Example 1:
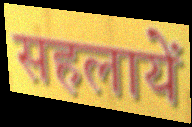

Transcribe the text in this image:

सहलायें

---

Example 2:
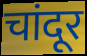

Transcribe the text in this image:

चांदूर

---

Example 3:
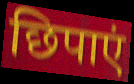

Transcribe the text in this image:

छिपाएं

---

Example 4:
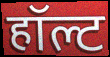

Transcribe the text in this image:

हॉल्‍ट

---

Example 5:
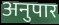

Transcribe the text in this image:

अनुपार